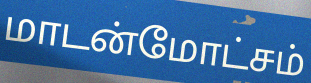
மாடன்மோட்சம்